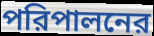
পরিপালনের